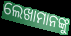
ଲେଖାମାନଙ୍କୁ